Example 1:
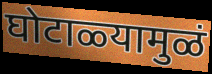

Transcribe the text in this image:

घोटाळ्यामुळं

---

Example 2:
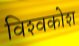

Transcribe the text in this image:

विश्वकोश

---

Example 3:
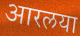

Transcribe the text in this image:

आरलया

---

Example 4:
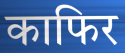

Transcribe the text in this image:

काफिर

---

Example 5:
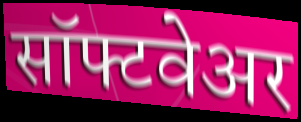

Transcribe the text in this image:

सॉफ्टवेअर